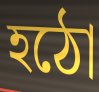
হঠো